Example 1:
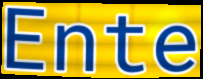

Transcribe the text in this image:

Ente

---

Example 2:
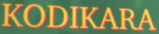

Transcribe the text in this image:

KODIKARA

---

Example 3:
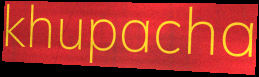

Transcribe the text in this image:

khupacha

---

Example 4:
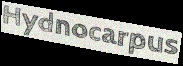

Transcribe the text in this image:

Hydnocarpus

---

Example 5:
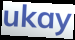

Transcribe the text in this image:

ukay